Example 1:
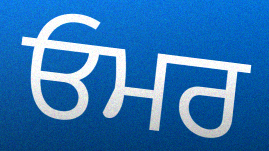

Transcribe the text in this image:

ਓਮਰ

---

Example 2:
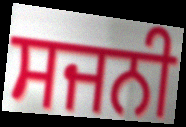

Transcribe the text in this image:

ਸਜਨੀ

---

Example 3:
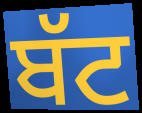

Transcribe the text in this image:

ਬੱਟ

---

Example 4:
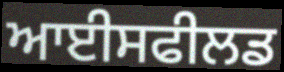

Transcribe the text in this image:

ਆਈਸਫੀਲਡ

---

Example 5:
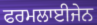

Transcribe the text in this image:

ਫਰਮਲਾਈਜੇਨ